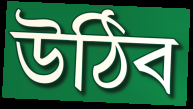
উঠিব